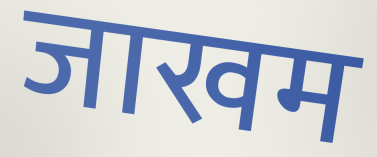
जाखम